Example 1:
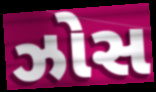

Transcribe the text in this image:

ઝોસ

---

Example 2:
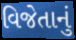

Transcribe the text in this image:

વિજેતાનું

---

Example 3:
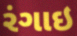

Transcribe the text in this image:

રંગાઇ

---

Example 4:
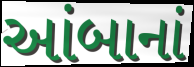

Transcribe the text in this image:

આંબાનાં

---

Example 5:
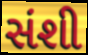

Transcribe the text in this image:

સંશી